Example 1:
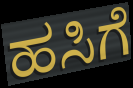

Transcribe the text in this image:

ಹಸಿಗೆ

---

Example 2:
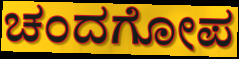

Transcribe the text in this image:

ಚಂದಗೋಪ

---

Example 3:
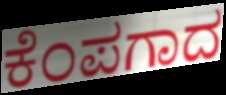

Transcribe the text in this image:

ಕೆಂಪಗಾದ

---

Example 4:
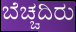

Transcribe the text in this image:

ಬೆಚ್ಚದಿರು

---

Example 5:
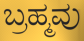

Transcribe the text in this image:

ಬ್ರಹ್ಮವು